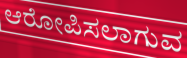
ಆರೋಪಿಸಲಾಗುವ